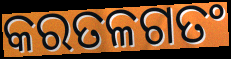
କରତଳଗତଂ